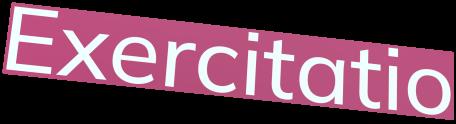
Exercitatio